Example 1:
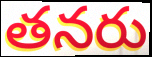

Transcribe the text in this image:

తనరు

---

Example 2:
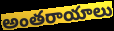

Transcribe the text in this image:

అంతరాయాలు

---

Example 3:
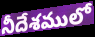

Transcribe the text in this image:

నీదేశములో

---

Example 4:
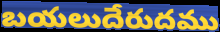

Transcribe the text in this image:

బయలుదేరుదము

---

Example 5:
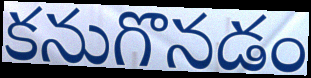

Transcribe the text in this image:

కనుగొనడం